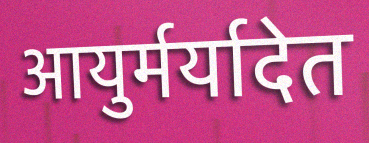
आयुर्मर्यादेत